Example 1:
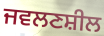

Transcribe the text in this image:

ਜਵਲਣਸ਼ੀਲ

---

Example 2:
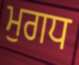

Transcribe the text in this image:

ਮੁਗਧ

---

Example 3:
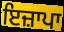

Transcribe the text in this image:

ਇਜ਼ਾਪਾ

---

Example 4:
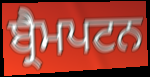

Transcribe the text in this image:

ਬ੍ਰੈਮਪਟਨ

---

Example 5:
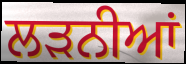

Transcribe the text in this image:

ਲੜਨੀਆਂ